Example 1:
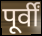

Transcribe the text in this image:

पूर्वीं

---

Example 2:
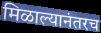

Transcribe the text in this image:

मिळाल्यानंतरच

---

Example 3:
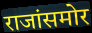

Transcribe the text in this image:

राजांसमोर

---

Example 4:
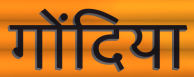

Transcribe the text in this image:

गोंदिया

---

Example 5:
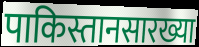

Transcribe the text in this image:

पाकिस्तानसारख्या